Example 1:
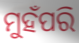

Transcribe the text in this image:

ମୁହଁପରି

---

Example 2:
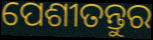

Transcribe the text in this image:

ପେଶୀତନ୍ତୁର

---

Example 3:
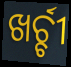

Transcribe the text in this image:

ଖର୍ଚ୍ଚୀ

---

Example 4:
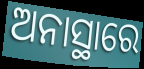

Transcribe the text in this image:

ଅନାସ୍ଥାରେ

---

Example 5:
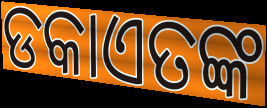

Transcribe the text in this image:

ଡକାଏତଙ୍କ